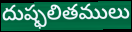
దుష్ఫలితములు